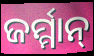
ଜର୍ମ୍ମାନ୍